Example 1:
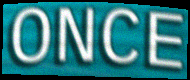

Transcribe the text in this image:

ONCE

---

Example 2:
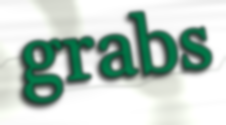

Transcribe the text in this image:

grabs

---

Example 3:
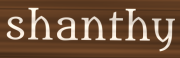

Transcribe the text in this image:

shanthy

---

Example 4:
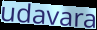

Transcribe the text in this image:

udavara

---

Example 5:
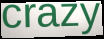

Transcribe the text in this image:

crazy